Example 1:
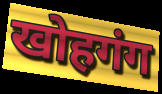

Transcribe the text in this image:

खोहगंग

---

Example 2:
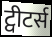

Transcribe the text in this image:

ट्वीटर्स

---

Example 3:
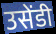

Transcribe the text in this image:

उसेंडी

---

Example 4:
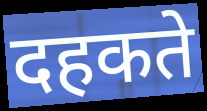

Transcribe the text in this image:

दहकते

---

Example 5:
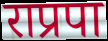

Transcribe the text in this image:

राप्रपा